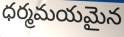
ధర్మమయమైన